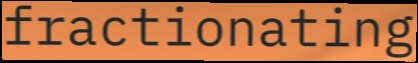
fractionating